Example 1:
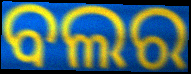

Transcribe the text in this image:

ବଲର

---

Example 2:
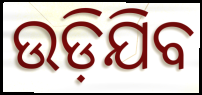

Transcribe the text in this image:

ଉଡ଼ିଯିବ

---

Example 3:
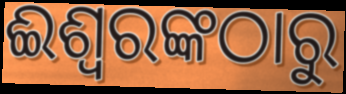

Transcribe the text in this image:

ଈଶ୍ଵରଙ୍କଠାରୁ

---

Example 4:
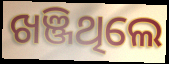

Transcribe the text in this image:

ଖଞ୍ଜିଥିଲେ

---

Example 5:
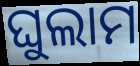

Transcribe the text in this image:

ଘୁଲାମ